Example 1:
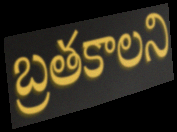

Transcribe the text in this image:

బ్రతకాలని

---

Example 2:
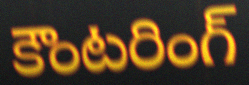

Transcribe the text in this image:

కౌంటరింగ్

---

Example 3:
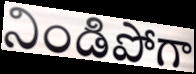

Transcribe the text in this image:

నిండిపోగా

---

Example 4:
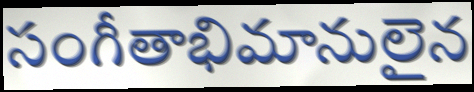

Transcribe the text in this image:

సంగీతాభిమానులైన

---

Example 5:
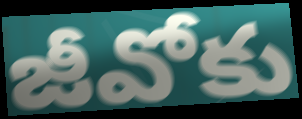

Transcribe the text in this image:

జీవోకు